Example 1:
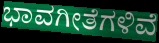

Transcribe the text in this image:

ಭಾವಗೀತೆಗಳಿವೆ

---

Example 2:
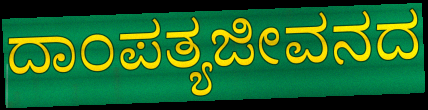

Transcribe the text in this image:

ದಾಂಪತ್ಯಜೀವನದ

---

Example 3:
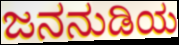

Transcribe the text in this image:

ಜನನುಡಿಯ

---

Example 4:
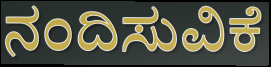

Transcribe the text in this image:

ನಂದಿಸುವಿಕೆ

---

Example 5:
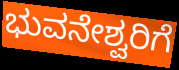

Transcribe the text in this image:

ಭುವನೇಶ್ವರಿಗೆ